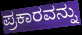
ಪ್ರಕಾರವನ್ನು